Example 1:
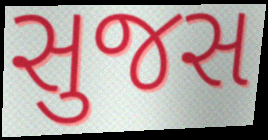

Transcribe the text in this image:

સુજસ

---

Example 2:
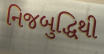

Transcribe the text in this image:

નિજબુદ્ધિથી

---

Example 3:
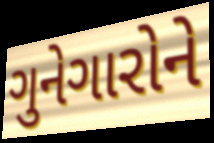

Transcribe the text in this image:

ગુનેગારોને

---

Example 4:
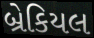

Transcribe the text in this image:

બ્રેકિયલ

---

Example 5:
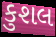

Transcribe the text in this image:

કુશલ